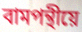
বামপন্থীয়ে